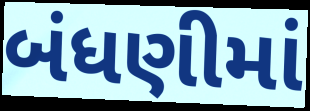
બંધણીમાં